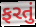
ફરતું